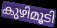
കുഴിമൂടി